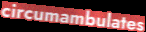
circumambulates